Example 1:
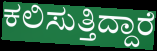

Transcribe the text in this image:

ಕಲಿಸುತ್ತಿದ್ದಾರೆ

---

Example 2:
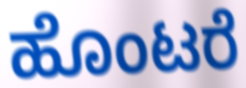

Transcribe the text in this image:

ಹೊಂಟರೆ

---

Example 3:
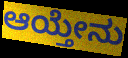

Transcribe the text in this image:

ಆಯ್ತೇನು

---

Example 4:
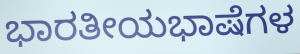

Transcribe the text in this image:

ಭಾರತೀಯಭಾಷೆಗಳ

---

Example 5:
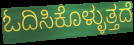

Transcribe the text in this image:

ಓದಿಸಿಕೊಳ್ಳುತ್ತದೆ